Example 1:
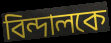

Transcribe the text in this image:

বিন্দালকে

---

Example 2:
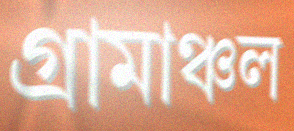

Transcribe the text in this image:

গ্রামাঞ্চল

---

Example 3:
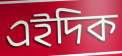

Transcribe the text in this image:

এইদিক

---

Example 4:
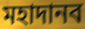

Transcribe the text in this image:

মহাদানব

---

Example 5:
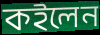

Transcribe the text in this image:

কইলেন